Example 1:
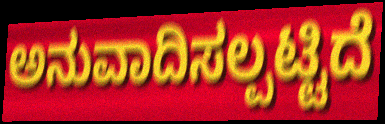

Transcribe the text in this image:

ಅನುವಾದಿಸಲ್ಪಟ್ಟಿದೆ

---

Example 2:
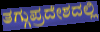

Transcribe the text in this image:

ತಗ್ಗುಪ್ರದೇಶದಲ್ಲಿ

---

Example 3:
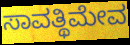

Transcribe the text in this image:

ಸಾವತ್ಥಿಮೇವ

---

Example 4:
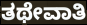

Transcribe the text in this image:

ತಥೇವಾತಿ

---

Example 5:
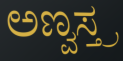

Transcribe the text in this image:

ಅಣ್ವಸ್ತ್ರ